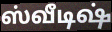
ஸ்வீடிஷ்